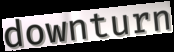
downturn